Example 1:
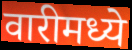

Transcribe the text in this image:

वारीमध्ये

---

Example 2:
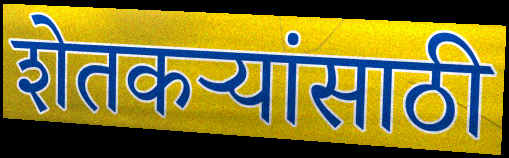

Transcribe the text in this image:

शेतकर्‍यांसाठी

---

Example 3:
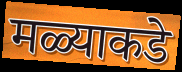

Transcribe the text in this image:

मळ्याकडे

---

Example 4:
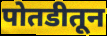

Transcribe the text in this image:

पोतडीतून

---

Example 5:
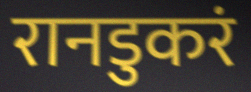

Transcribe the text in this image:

रानडुकरं